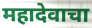
महादेवाचा